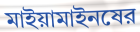
মাইয়ামাইনষের